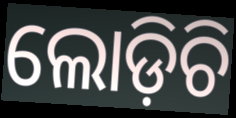
ଲୋଡ଼ିଚି